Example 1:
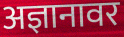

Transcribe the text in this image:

अज्ञानावर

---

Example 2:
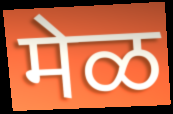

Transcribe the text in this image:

मेळ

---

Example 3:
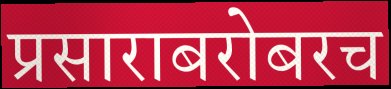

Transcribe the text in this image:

प्रसाराबरोबरच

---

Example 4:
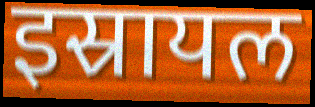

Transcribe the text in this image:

इस्रायल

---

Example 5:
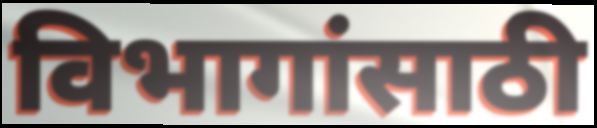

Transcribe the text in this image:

विभागांसाठी